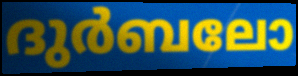
ദുർബലോ